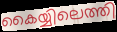
കൈയ്യിലെത്തി